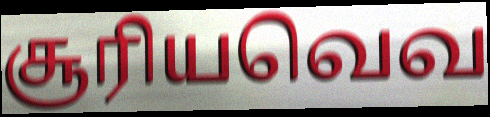
சூரியவெவ